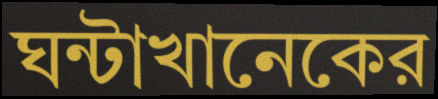
ঘন্টাখানেকের